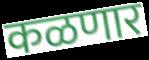
कळणार